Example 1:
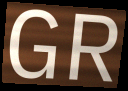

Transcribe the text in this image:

GR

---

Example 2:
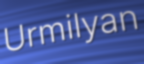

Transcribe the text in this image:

Urmilyan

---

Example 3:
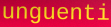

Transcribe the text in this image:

unguenti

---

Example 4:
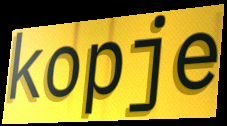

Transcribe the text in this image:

kopje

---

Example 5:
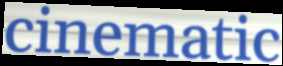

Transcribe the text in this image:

cinematic